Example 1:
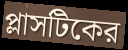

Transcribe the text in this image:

প্লাসটিকের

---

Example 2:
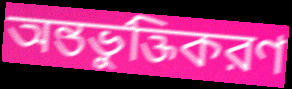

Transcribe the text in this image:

অন্তর্ভুক্তিকরণ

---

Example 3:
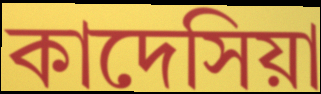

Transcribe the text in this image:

কাদেসিয়া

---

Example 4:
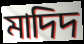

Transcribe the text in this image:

মাদিদ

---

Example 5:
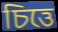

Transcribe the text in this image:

চিত্তে